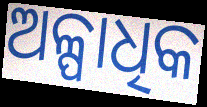
ଅଳ୍ପାଧିକ